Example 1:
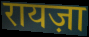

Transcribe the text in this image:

रायज़ा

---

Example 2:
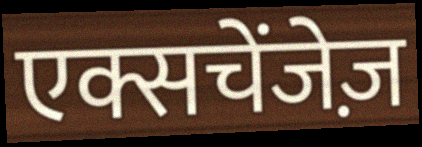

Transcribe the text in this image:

एक्सचेंजेज़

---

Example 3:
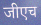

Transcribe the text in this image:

जीएच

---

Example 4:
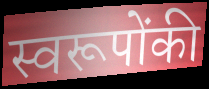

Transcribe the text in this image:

स्वरूपोंकी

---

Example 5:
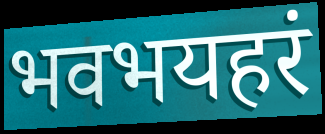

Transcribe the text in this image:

भवभयहरं